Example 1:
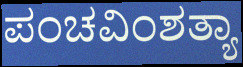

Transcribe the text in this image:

ಪಂಚವಿಂಶತ್ಯಾ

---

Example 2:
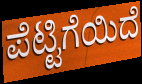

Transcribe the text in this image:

ಪೆಟ್ಟಿಗೆಯಿದೆ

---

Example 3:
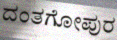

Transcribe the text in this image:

ದಂತಗೋಪುರ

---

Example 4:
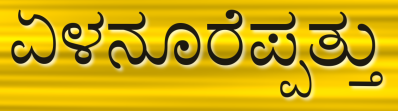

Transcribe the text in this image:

ಏಳನೂರೆಪ್ಪತ್ತು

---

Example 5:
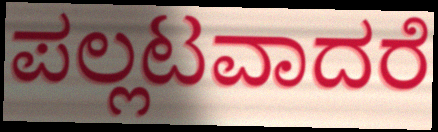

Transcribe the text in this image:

ಪಲ್ಲಟವಾದರೆ